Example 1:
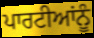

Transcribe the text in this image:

ਪਾਰਟੀਆਂਨੂੰ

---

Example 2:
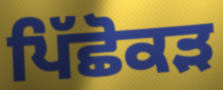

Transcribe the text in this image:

ਪਿੱਛੋਕੜ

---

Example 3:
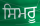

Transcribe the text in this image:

ਸਿਮਰੂ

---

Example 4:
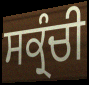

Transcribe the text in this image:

ਸਕ੍ਰੰਚੀ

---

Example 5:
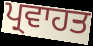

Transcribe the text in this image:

ਪ੍ਰਵਾਹਤ